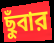
ছুঁবার